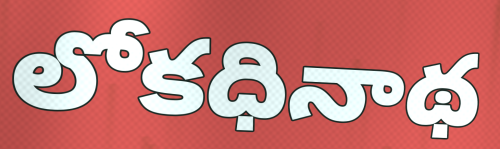
లోకధినాథ